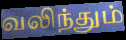
வலிந்தும்